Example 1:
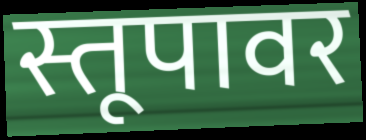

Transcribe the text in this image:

स्तूपावर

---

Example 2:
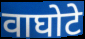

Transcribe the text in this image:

वाघोटे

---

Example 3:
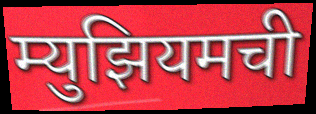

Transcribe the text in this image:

म्युझियमची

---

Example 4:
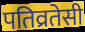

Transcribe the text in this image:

पतिव्रतेसी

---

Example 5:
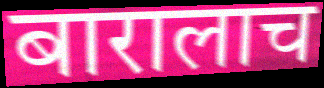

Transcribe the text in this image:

बारालाच